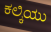
ಕಲ್ಕಿಯು